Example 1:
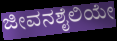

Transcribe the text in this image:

ಜೀವನಶೈಲಿಯೇ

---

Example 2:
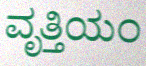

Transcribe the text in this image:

ವೃತ್ತಿಯಂ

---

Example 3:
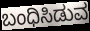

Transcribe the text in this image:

ಬಂಧಿಸಿಡುವ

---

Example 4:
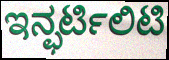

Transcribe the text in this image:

ಇನ್ಫರ್ಟಿಲಿಟಿ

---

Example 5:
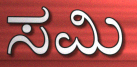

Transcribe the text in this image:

ಸಮಿ